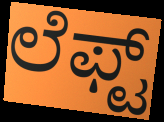
ಲೆಫ್ಟ್